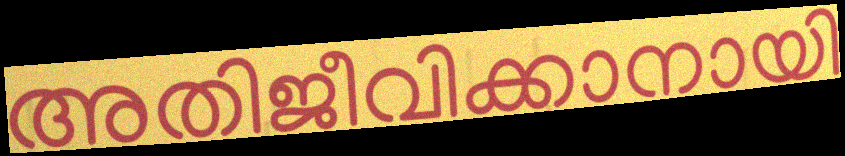
അതിജീവിക്കാനായി